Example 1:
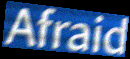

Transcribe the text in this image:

Afraid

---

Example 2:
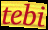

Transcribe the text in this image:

tebi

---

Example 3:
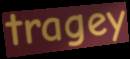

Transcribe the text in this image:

tragey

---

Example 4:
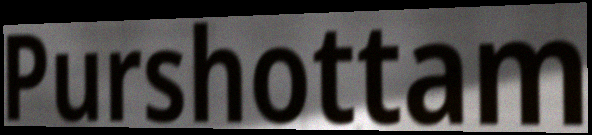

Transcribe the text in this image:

Purshottam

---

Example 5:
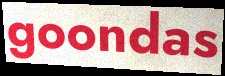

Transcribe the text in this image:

goondas